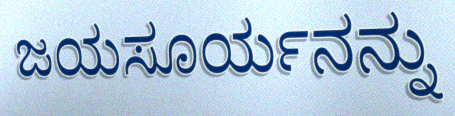
ಜಯಸೂರ್ಯನನ್ನು